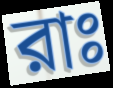
রাঃ